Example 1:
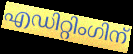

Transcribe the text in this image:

എഡിറ്റിംഗിന്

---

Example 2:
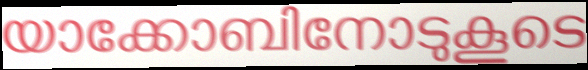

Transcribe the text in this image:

യാക്കോബിനോടുകൂടെ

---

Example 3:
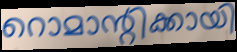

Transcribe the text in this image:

റൊമാന്റിക്കായി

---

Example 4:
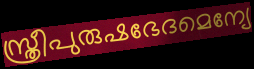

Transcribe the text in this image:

സ്ത്രീപുരുഷഭേദമെന്യേ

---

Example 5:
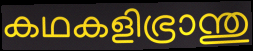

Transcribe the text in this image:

കഥകളിഭ്രാന്തു